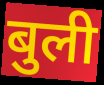
बुली